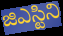
జిఎస్టిని